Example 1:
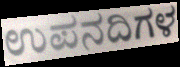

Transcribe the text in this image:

ಉಪನದಿಗಳ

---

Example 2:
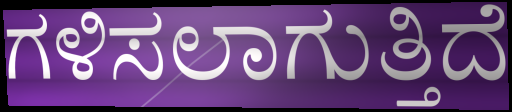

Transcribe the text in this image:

ಗಳಿಸಲಾಗುತ್ತಿದೆ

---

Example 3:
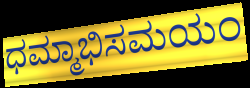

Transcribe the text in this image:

ಧಮ್ಮಾಭಿಸಮಯಂ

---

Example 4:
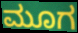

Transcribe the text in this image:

ಮೂಗ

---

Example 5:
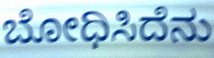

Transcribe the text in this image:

ಬೋಧಿಸಿದೆನು